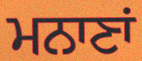
ਮਨਾਣਾਂ